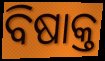
ବିଷାକ୍ତ